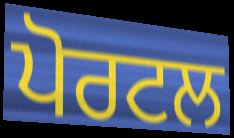
ਪੋਰਟਲ